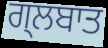
ਗ੍ਲਬਾਤ